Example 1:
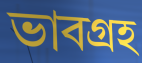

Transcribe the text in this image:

ভাবগ্রহ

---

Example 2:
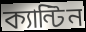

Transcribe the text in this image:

ক্যান্টিন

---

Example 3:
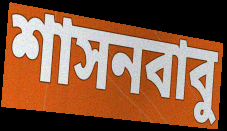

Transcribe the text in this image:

শাসনবাবু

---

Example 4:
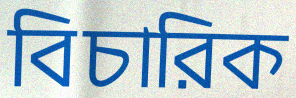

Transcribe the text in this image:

বিচারিক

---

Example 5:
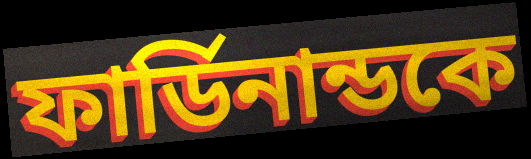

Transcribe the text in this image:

ফার্ডিনান্ডকে